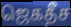
ஜெகதீச